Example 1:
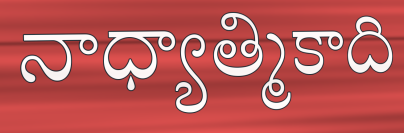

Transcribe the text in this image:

నాధ్యాత్మికాది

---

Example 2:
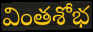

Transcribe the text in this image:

వింతశోభ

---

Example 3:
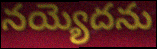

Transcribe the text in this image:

నయ్యెదను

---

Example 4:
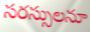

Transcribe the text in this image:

సరస్సులనూ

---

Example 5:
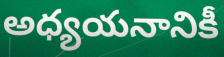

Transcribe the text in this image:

అధ్యయనానికీ